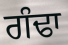
ਗੰਢਾ